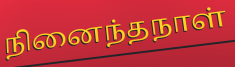
நினைந்தநாள்